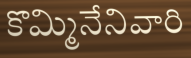
కొమ్మినేనివారి